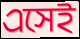
এসেই